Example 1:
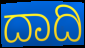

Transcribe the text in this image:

ದಾದಿ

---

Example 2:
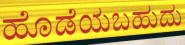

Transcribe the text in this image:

ಹೊಡೆಯಬಹುದು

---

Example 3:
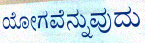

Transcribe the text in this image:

ಯೋಗವೆನ್ನುವುದು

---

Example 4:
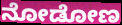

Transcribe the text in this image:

ನೋಡೋಣ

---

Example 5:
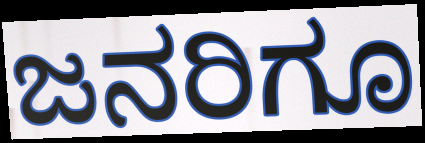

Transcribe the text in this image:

ಜನರಿಗೂ